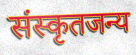
संस्कृतजन्य